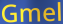
Gmel